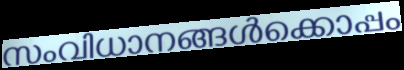
സംവിധാനങ്ങൾക്കൊപ്പം